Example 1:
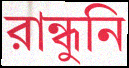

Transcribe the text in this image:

রান্ধুনি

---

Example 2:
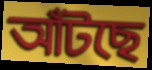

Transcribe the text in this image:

আঁটছে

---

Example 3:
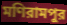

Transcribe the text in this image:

মণিরামপুর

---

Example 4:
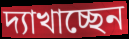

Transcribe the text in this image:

দ্যাখাচ্ছেন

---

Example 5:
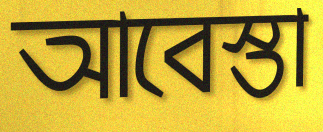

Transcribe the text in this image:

আবেস্তা